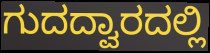
ಗುದದ್ವಾರದಲ್ಲಿ